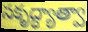
సకృద్ధ్యాత్వా